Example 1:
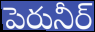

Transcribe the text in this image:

పెరునీర్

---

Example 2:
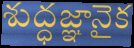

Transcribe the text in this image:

శుద్ధజ్ఞానైక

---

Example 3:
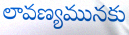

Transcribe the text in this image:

లావణ్యమునకు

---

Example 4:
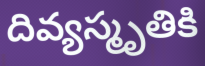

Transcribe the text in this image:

దివ్యస్మృతికి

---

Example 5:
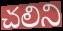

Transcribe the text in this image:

చలిని